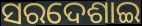
ସରଦେଶାଇ